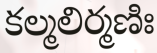
కల్మలిర్మణిః